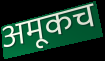
अमूकच